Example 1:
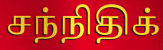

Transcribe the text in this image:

சந்நிதிக்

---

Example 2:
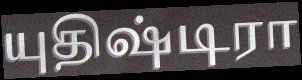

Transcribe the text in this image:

யுதிஷ்டிரா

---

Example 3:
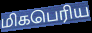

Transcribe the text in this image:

மிகபெரிய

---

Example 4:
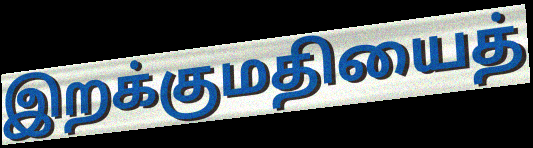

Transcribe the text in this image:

இறக்குமதியைத்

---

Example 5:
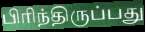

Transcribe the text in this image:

பிரிந்திருப்பது